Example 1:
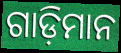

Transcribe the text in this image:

ଗାଡ଼ିମାନ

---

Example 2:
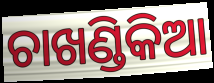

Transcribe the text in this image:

ଚାଖଣ୍ଡିକିଆ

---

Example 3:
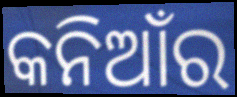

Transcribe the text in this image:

କନିଆଁର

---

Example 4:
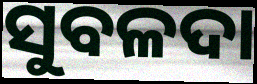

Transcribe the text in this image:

ସୁବଳଦା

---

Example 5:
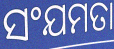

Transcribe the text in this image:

ସଂଯମତା